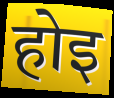
होइ